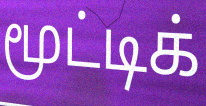
மூட்டிக்